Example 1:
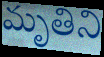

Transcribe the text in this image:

మృతిని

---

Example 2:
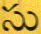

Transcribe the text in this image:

సు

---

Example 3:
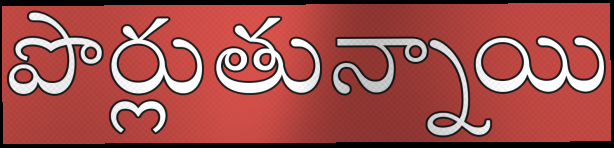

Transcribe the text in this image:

పొర్లుతున్నాయి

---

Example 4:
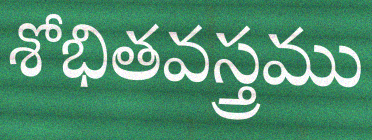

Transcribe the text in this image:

శోభితవస్త్రము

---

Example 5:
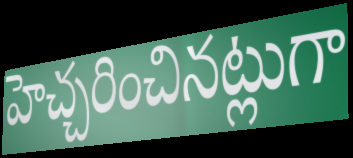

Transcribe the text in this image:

హెచ్చరించినట్లుగా